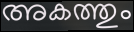
അകത്തും